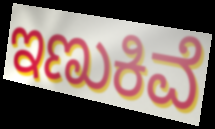
ಇಣುಕಿವೆ